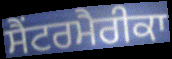
ਸੈਂਟਰਮੈਰੀਕਾ